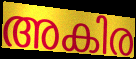
അകിര